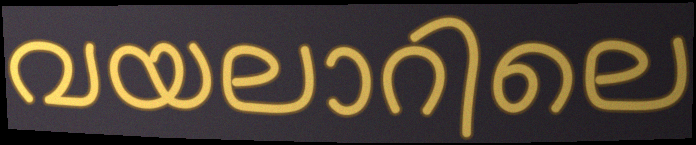
വയലാറിലെ